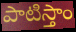
పాటిస్తాం